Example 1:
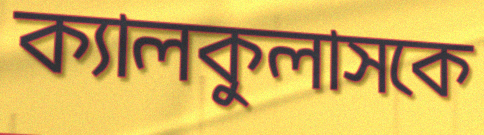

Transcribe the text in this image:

ক্যালকুলাসকে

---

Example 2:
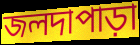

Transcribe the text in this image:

জলদাপাড়া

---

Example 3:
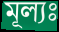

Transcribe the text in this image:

মূল্যঃ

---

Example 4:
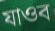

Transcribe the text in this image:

যাওব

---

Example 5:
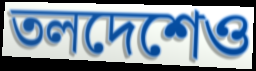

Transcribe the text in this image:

তলদেশেও